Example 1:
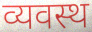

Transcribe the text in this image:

व्यवस्थ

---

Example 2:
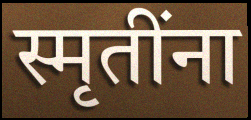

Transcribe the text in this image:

स्मृतींना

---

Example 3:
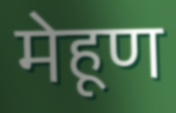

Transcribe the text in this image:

मेहूण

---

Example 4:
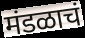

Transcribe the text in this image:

मंडळाचं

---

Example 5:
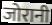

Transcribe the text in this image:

जोरानी